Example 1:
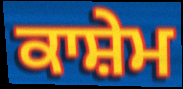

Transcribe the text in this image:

ਕਾਸ਼ੇਮ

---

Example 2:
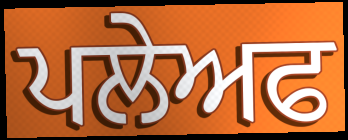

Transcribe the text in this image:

ਪਲੇਅਫ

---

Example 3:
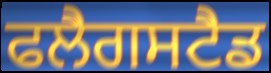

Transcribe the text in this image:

ਫਲੈਗਸਟੈਡ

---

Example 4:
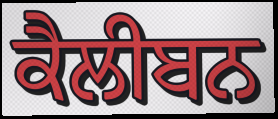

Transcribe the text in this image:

ਕੈਲੀਬਨ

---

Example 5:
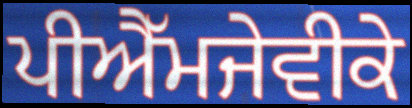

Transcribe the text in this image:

ਪੀਐੱਮਜੇਵੀਕੇ